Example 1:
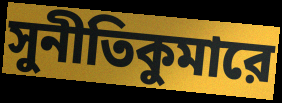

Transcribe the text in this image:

সুনীতিকুমারে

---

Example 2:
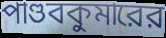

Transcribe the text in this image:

পাণ্ডবকুমারের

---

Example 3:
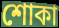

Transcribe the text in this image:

শোকা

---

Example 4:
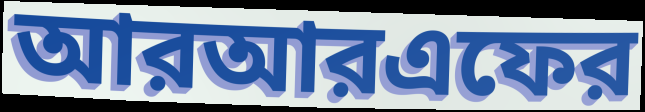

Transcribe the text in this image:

আরআরএফের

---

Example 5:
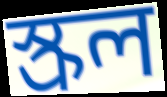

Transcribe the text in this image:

স্ক্রল